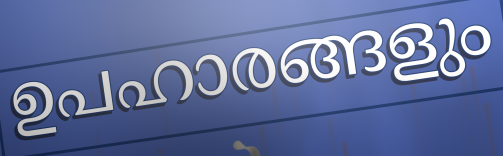
ഉപഹാരങ്ങളും